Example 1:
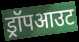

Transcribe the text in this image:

ड्रॉपआउट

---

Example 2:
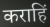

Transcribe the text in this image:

कराहिं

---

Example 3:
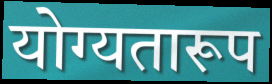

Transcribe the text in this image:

योग्यतारूप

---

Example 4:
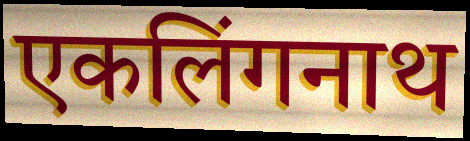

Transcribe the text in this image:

एकलिंगनाथ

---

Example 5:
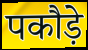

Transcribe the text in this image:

पकौड़े